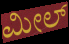
ಮೀಲ್